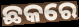
ଛକରେ